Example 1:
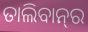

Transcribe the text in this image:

ତାଲିବାନ୍‌ର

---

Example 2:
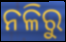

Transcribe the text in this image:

ନଳିରୁ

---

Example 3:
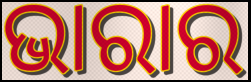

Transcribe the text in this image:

ଭାରାର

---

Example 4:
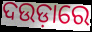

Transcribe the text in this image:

ଦଉଡ଼ାରେ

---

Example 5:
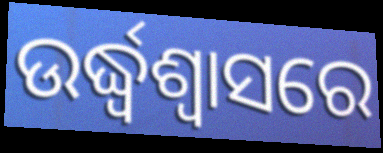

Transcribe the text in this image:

ଉର୍ଦ୍ଧ୍ଵଶ୍ୱାସରେ